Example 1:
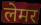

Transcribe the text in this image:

लेमर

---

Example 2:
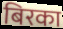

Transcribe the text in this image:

बिरका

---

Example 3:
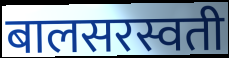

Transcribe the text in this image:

बालसरस्वती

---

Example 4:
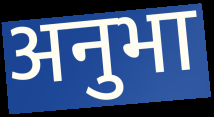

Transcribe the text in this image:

अनुभा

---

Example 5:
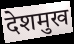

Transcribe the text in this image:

देशमुख